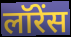
लॉरेंस